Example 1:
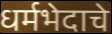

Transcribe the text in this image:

धर्मभेदाचे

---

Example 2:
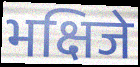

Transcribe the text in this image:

भक्षिजे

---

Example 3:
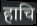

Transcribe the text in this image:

हाचि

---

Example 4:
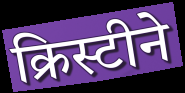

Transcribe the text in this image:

क्रिस्टीने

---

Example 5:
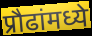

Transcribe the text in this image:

प्रौढांमध्ये